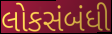
લોકસંબંધી